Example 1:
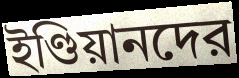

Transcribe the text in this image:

ইণ্ডিয়ানদের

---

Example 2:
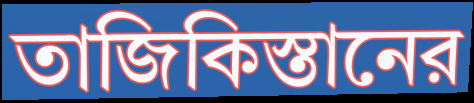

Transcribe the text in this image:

তাজিকিস্তানের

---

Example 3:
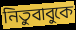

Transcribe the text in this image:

নিতুবাবুকে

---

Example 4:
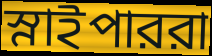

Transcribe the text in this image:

স্নাইপাররা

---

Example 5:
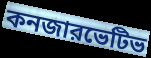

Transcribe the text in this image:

কনজারভেটিভ